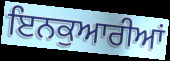
ਇਨਕੁਆਰੀਆਂ